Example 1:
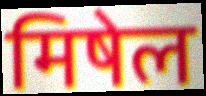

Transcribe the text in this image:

मिषेल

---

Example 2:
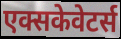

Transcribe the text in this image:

एक्सकेवेटर्स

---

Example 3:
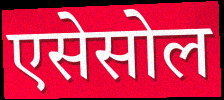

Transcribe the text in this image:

एसेसोल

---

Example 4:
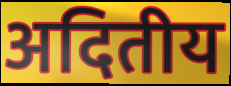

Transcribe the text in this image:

अदितीय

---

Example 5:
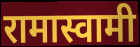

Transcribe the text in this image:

रामास्वामी